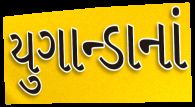
યુગાન્ડાનાં